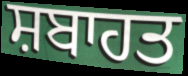
ਸ਼ਬਾਹਤ